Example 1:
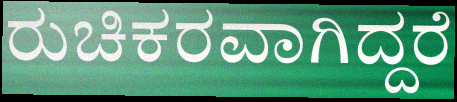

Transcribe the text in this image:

ರುಚಿಕರವಾಗಿದ್ದರೆ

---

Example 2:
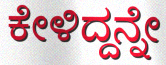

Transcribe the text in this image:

ಕೇಳಿದ್ದನ್ನೇ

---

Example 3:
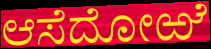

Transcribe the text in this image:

ಆಸೆದೋಱೆ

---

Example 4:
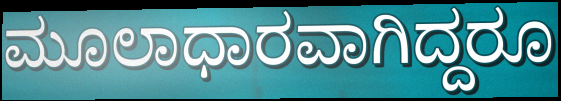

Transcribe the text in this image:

ಮೂಲಾಧಾರವಾಗಿದ್ದರೂ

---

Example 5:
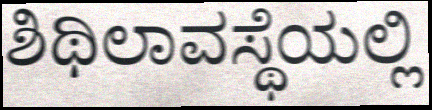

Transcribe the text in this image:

ಶಿಥಿಲಾವಸ್ಥೆಯಲ್ಲಿ